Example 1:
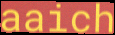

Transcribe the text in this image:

aaich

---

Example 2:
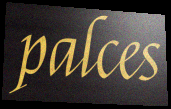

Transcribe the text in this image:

palces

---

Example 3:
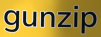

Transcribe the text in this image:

gunzip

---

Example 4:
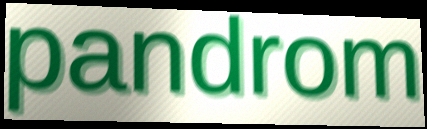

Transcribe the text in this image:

pandrom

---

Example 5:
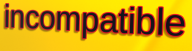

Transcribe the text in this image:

incompatible